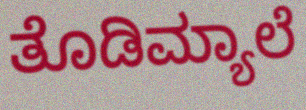
ತೊಡಿಮ್ಯಾಲೆ